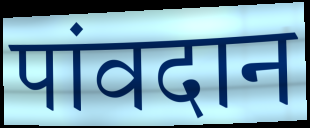
पांवदान